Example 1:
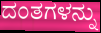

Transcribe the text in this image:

ದಂತಗಳನ್ನು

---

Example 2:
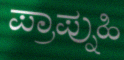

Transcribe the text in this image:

ಪ್ರಾಪ್ನುಹಿ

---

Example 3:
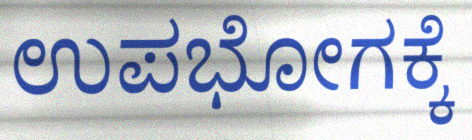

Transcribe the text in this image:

ಉಪಭೋಗಕ್ಕೆ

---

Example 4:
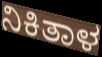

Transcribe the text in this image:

ನಿಕಿತಾಳ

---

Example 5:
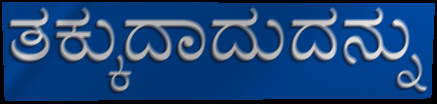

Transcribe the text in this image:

ತಕ್ಕುದಾದುದನ್ನು